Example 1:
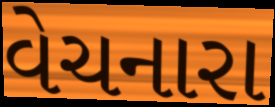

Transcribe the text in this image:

વેચનારા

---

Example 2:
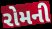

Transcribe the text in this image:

રોમની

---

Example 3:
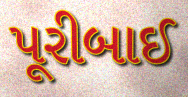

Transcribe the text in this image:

પૂરીબાઈ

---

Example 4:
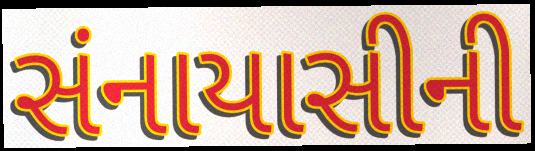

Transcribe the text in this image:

સંનાયાસીની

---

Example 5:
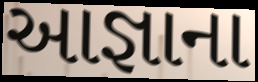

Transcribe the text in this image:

આજ્ઞાના